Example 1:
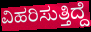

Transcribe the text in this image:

ವಿಹರಿಸುತ್ತಿದ್ದೆ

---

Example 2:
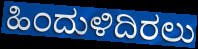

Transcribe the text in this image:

ಹಿಂದುಳಿದಿರಲು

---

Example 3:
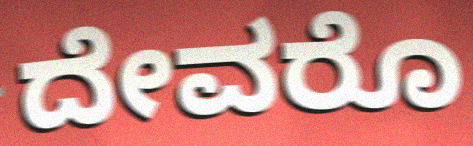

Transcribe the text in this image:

ದೇವರೊ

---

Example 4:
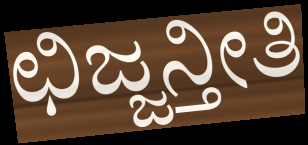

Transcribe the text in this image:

ಛಿಜ್ಜನ್ತೀತಿ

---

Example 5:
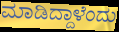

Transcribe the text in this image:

ಮಾಡಿದ್ದಾಳೆಂದು